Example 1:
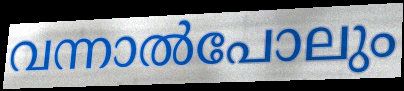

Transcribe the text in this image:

വന്നാൽപോലും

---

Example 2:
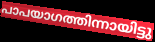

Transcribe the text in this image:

പാപയാഗത്തിന്നായിട്ടു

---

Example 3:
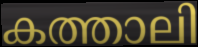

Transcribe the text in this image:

കത്താലി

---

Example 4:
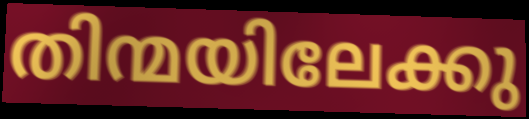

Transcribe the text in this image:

തിന്മയിലേക്കു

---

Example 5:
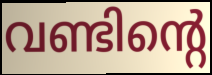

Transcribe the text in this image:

വണ്ടിന്റെ